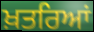
ਖ਼ਤਰਿਆਂ